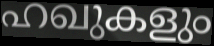
ഹഖുകളും